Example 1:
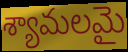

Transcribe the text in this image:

శ్యామలమై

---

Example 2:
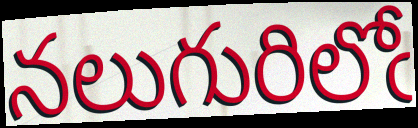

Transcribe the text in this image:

నలుగురిలోఁ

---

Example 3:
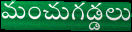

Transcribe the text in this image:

మంచుగడ్డలు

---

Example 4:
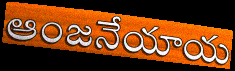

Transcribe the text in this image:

ఆంజనేయాయ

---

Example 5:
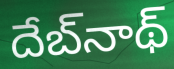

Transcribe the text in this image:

దేబ్‌నాథ్